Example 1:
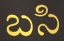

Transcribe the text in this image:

బసి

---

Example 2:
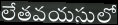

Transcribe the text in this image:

లేతవయసులో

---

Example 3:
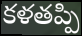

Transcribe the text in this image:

కళతప్పి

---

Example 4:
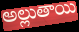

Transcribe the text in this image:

అల్లుతాయి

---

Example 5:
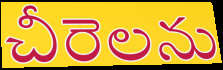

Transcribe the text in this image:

చీరెలను